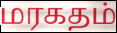
மரகதம்